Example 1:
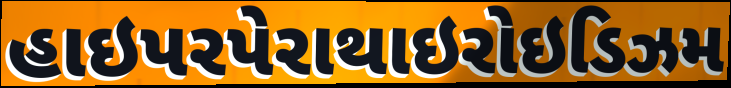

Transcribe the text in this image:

હાઇપરપેરાથાઇરોઇડિઝમ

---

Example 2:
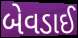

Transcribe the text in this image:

બેવડાઈ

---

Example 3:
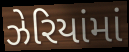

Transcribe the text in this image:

ઝેરિયાંમાં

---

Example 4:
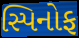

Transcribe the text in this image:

સ્પિનોફ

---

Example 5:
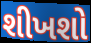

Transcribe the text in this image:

શીખશો